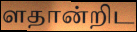
ளதான்றிட